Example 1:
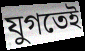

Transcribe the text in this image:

যুগতেই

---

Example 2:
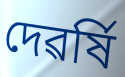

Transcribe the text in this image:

দেৱৰ্ষি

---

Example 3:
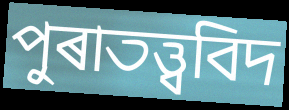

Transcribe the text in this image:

পুৰাতত্ত্ববিদ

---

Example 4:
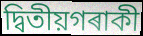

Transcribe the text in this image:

দ্বিতীয়গৰাকী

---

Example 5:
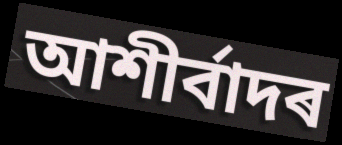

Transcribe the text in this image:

আশীৰ্বাদৰ